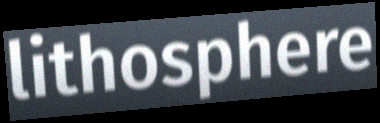
lithosphere